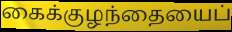
கைக்குழந்தையைப்